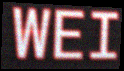
WEI